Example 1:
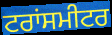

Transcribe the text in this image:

ਟਰਾਂਸਮੀਟਰ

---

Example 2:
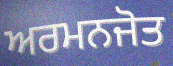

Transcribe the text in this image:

ਅਰਮਨਜੋਤ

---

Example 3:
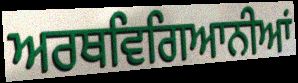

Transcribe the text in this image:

ਅਰਥਵਿਗਿਆਨੀਆਂ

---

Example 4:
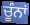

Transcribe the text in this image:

ਚੂੰਨਾਂ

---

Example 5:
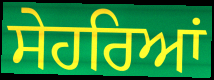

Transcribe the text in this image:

ਸੇਹਰਿਆਂ